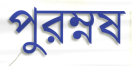
পুরম্নষ